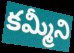
కమ్మీని